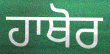
ਹਾਥੋਰ